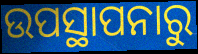
ଉପସ୍ଥାପନାରୁ